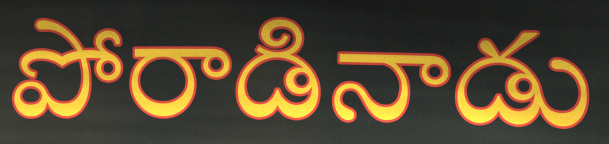
పోరాడినాడు